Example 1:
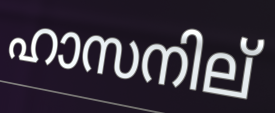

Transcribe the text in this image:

ഹാസനില്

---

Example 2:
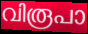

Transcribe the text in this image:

വിരൂപാ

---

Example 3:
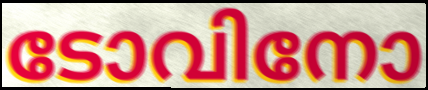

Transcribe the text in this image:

ടോവിനോ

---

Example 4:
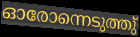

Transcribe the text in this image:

ഓരോന്നെടുത്തു്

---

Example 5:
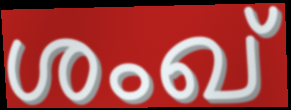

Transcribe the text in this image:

ശംഖ്